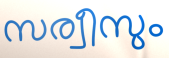
സര്വീസും